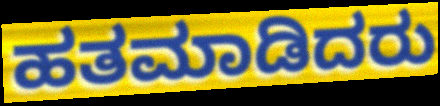
ಹತಮಾಡಿದರು